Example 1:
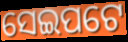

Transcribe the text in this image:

ସେଇପଟେ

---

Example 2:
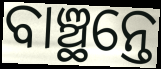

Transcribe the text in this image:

ବାଞ୍ଛନ୍ତେ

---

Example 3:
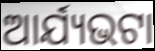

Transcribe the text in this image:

ଆର୍ଯ୍ୟଭଟା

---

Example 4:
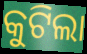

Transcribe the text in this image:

କୁଟିଲା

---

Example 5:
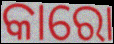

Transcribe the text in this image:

କାରୋ